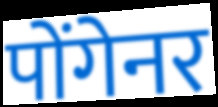
पोंगेनर